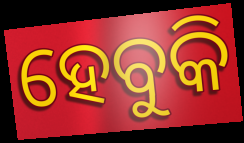
ହେବୁକି